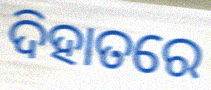
ଦିହାତରେ